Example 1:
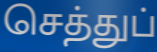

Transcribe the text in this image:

செத்துப்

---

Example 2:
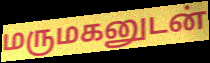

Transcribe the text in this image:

மருமகனுடன்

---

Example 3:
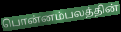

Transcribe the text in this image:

பொன்னம்பலத்தின்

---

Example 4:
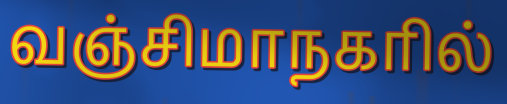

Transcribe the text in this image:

வஞ்சிமாநகரில்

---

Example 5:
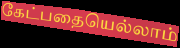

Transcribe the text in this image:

கேட்பதையெல்லாம்